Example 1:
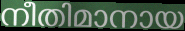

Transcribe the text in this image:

നീതിമാനായ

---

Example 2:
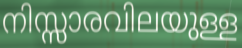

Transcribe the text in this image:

നിസ്സാരവിലയുള്ള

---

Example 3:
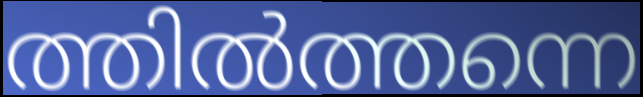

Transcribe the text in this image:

ത്തിൽത്തന്നെ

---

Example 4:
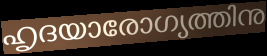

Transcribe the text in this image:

ഹൃദയാരോഗ്യത്തിനു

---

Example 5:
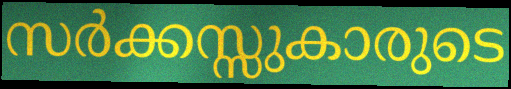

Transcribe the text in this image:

സർക്കസ്സുകാരുടെ